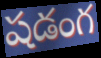
షడంగ